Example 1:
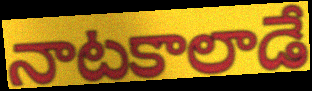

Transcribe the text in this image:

నాటకాలాడే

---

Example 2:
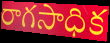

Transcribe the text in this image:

రాగసాధిక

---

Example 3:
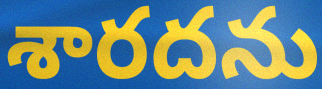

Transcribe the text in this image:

శారదను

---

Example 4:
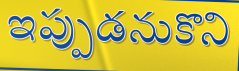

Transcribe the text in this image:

ఇప్పుడనుకొని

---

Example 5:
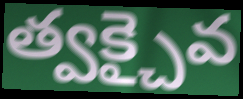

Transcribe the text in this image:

త్వక్చైవ